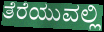
ತೆರೆಯುವಲ್ಲಿ